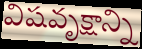
విషవృక్షాన్ని